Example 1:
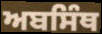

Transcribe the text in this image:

ਅਬਸਿੰਥ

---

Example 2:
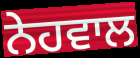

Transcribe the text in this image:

ਨੇਹਵਾਲ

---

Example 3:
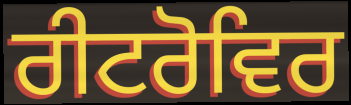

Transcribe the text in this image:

ਰੀਟਰੋਵਿਰ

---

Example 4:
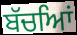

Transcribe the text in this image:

ਬੱਚਆਿਂ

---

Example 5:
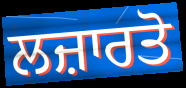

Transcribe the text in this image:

ਲਜ਼ਾਰਤੋ